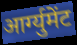
आर्ग्युमेंट